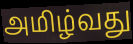
அமிழ்வது